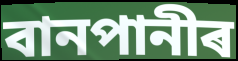
বানপানীৰ